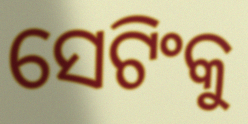
ସେଟିଂକୁ